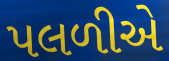
પલળીએ